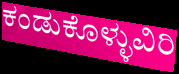
ಕಂಡುಕೊಳ್ಳುವಿರಿ